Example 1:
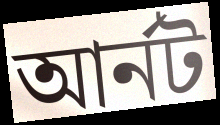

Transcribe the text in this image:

আর্নট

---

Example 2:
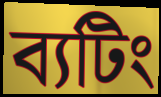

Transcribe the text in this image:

ব্যটিং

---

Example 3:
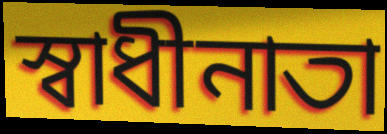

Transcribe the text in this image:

স্বাধীনাতা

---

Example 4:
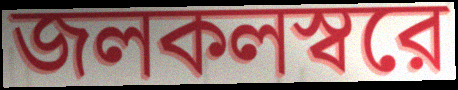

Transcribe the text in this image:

জলকলস্বরে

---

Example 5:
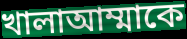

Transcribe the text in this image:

খালাআম্মাকে